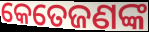
କେତେଜଣଙ୍କ